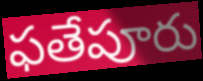
ఫతేపూరు